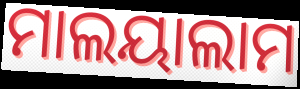
ମାଲୟାଲାମ